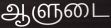
ஆளுடை